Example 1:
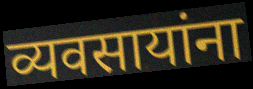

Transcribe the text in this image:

व्यवसायांना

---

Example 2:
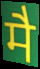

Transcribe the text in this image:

मै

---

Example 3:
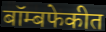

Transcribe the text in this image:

बॉम्बफेकीत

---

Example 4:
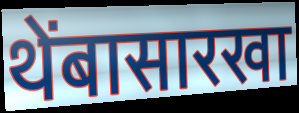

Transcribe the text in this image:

थेंबासारखा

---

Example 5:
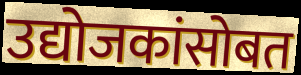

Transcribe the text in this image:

उद्योजकांसोबत